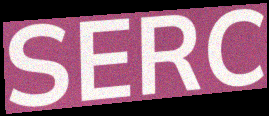
SERC